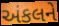
અંકલને